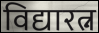
विद्यारत्न